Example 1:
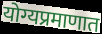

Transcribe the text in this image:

योग्यप्रमाणात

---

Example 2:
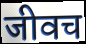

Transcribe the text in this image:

जीवच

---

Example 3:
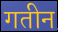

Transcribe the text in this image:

गतीन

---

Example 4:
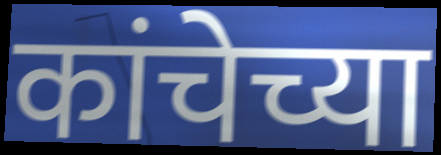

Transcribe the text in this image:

कांचेच्या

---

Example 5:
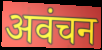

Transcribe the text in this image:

अवंचन